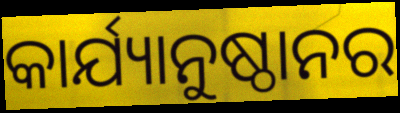
କାର୍ଯ୍ୟାନୁଷ୍ଠାନର